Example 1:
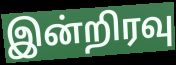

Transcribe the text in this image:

இன்றிரவு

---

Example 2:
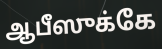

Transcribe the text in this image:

ஆபீஸுக்கே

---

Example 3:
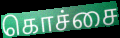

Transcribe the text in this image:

கொச்சை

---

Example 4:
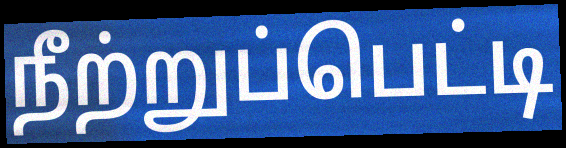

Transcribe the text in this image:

நீற்றுப்பெட்டி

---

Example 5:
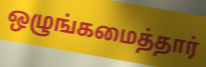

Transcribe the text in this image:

ஒழுங்கமைத்தார்